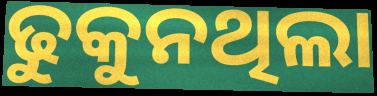
ଢୁକୁନଥିଲା